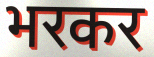
भरकर